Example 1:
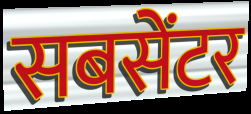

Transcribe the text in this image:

सबसेंटर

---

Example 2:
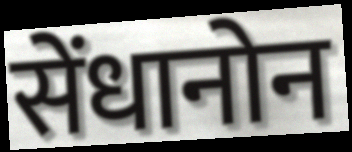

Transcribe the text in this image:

सेंधानोन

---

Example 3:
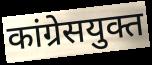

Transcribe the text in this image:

कांग्रेसयुक्त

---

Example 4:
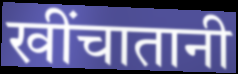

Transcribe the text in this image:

खींचातानी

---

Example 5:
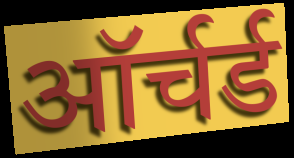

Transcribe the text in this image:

ऑर्चर्ड